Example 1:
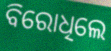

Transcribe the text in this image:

ବିରୋଧିଲେ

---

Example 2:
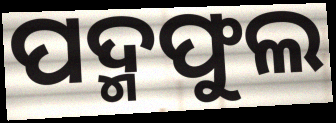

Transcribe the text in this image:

ପଦ୍ମଫୁଲ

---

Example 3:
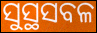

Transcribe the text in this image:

ସୁସ୍ଥସବଳ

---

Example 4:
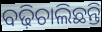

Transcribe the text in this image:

ବଢ଼ିଚାଲିଛନ୍ତି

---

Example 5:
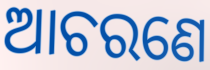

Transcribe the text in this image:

ଆଚରଣେ